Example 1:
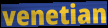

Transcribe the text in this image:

venetian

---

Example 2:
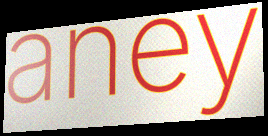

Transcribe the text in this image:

aney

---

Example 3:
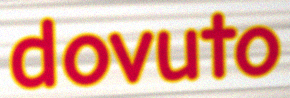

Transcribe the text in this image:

dovuto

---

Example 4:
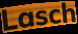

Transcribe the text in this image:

Lasch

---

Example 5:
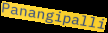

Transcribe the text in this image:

Panangipalli